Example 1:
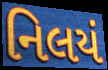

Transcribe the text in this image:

નિલયં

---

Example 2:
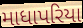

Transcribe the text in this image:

માધાપરિયા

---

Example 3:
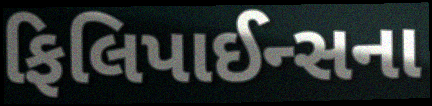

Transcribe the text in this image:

ફિલિપાઈન્સના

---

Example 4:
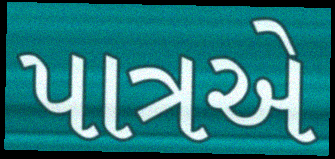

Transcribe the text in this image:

પાત્રએ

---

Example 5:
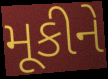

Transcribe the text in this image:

મૂકીને